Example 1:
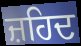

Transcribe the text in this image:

ਜ਼ਹਿਦ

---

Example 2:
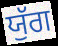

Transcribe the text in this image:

ਯੁੱਗ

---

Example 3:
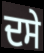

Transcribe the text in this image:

ਦਸੇ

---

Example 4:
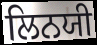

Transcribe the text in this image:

ਲਿਨਯੀ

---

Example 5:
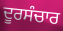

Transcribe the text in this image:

ਦੂਰਸੰਚਾਰ